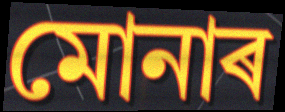
মোনাৰ